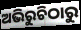
ଅଭିରୁଚିଠାରୁ